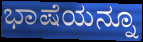
ಭಾಷೆಯನ್ನೂ